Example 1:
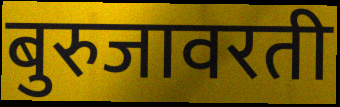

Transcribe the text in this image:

बुरुजावरती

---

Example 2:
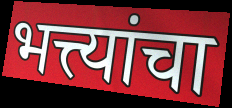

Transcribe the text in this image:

भत्त्यांचा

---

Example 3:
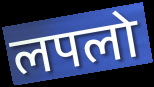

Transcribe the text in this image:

लपलो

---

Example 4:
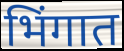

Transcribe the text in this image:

भिंगात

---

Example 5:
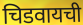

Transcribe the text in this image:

चिडवायची